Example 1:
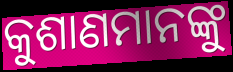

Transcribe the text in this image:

କୁଶାଣମାନଙ୍କୁ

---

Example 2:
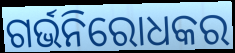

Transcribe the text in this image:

ଗର୍ଭନିରୋଧକର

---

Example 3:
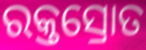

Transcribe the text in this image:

ରକ୍ତସ୍ରୋତ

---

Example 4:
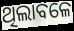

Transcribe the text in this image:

ଥିଲାବଳେ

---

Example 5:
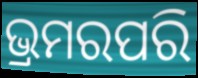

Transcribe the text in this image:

ଭ୍ରମରପରି